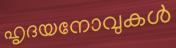
ഹൃദയനോവുകൾ